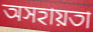
অসহায়তা